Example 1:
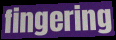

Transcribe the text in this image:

fingering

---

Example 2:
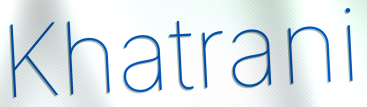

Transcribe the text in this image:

Khatrani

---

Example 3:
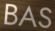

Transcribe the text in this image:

BAS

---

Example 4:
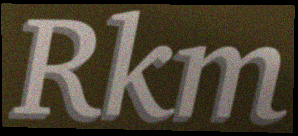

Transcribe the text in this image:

Rkm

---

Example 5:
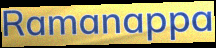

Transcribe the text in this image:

Ramanappa